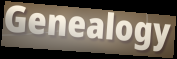
Genealogy